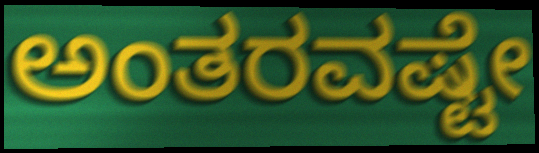
ಅಂತರವಷ್ಟೇ